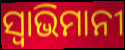
ସ୍ବାଭିମାନୀ